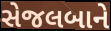
સેજલબાને